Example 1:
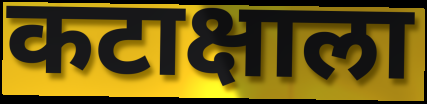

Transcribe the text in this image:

कटाक्षाला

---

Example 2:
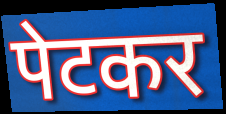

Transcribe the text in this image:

पेटकर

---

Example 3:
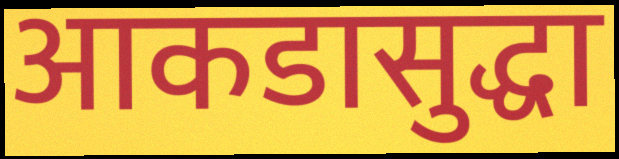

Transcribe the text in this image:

आकडासुद्धा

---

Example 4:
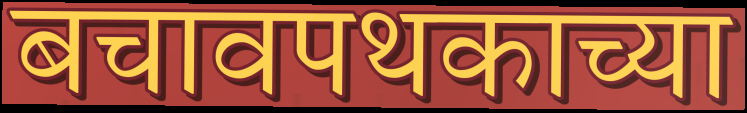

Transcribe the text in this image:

बचावपथकाच्या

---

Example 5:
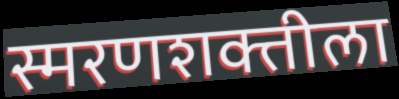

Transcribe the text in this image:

स्मरणशक्तीला